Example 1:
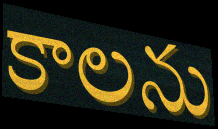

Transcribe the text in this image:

కాలను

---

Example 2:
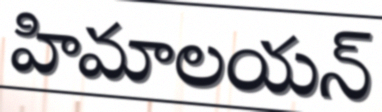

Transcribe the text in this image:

హిమాలయన్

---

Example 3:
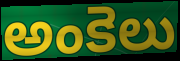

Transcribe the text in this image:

అంకెలు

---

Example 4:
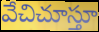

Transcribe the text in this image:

వేచిచూస్తూ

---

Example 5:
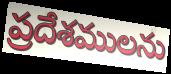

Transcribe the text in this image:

ప్రదేశములను